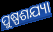
ପୁଷ୍ପଶଯ୍ୟା